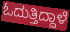
ಓದುತ್ತಿದ್ದಾಳೆ